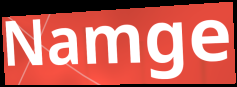
Namge